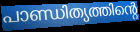
പാണ്ഡിത്യത്തിന്റെ